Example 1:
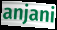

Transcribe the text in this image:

anjani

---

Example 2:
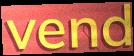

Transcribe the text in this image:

vend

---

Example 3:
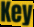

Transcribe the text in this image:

Key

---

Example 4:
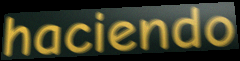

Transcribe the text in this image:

haciendo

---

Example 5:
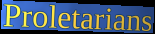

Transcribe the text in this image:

Proletarians